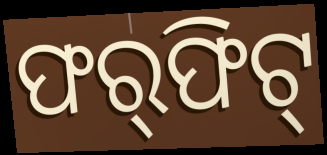
ଫର୍‍ଫିଟ୍